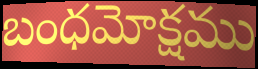
బంధమోక్షము